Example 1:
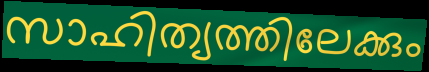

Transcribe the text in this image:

സാഹിത്യത്തിലേക്കും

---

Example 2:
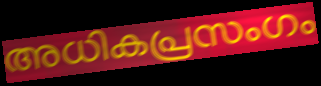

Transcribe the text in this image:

അധികപ്രസംഗം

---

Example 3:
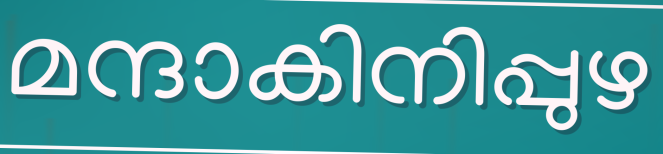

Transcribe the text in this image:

മന്ദാകിനിപ്പുഴ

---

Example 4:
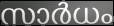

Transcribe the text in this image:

സാർധം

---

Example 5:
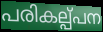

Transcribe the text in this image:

പരികല്പ്പന